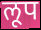
लूप